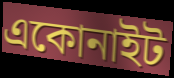
একোনাইট